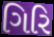
ગિરિ